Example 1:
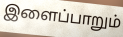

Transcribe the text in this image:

இளைப்பாறும்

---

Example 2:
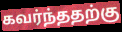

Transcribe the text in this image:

கவர்ந்ததற்கு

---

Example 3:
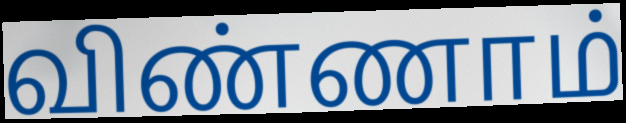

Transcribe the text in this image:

விண்ணாம்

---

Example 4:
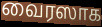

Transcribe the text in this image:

வைரஸாக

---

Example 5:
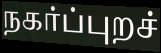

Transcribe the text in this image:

நகர்ப்புறச்